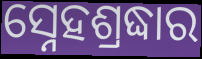
ସ୍ନେହଶ୍ରଦ୍ଧାର